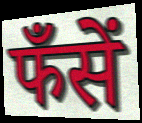
फँसें